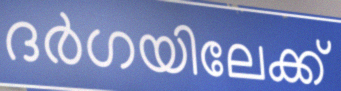
ദർഗയിലേക്ക്